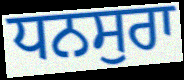
ਧਨਸੁਰਾ